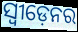
ସ୍ଵୀଡ଼େନର